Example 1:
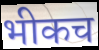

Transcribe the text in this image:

भीकच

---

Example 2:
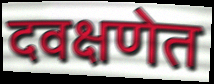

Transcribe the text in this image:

दवक्षणेत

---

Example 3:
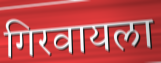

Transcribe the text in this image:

गिरवायला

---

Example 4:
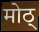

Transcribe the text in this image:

मोठ्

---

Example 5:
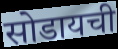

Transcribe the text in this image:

सोडायची